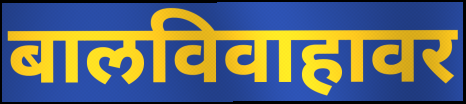
बालविवाहावर